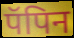
पॅपिन